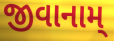
જીવાનામ્